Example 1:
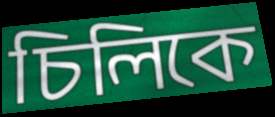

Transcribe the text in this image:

চিলিকে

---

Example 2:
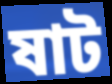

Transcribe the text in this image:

ষাট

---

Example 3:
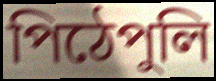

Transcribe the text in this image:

পিঠেপুলি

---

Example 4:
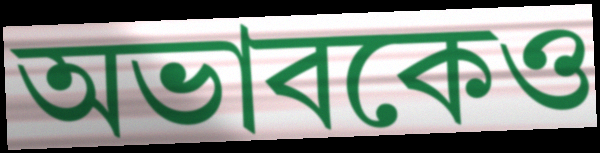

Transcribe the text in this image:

অভাবকেও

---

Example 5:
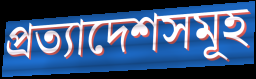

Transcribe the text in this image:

প্রত্যাদেশসমূহ